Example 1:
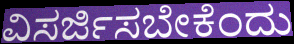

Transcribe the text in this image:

ವಿಸರ್ಜಿಸಬೇಕೆಂದು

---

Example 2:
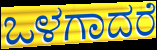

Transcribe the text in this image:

ಒಳಗಾದರೆ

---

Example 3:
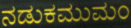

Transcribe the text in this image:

ನಡುಕಮುಮಂ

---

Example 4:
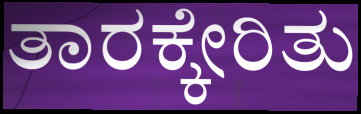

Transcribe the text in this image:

ತಾರಕ್ಕೇರಿತು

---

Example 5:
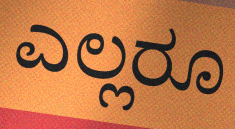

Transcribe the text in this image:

ಎಲ್ಲರೂ